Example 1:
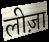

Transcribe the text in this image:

लीज़ा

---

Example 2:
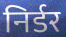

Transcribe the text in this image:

निर्डर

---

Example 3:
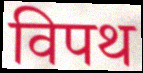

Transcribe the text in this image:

विपथ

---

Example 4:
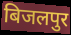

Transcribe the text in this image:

बिजलपुर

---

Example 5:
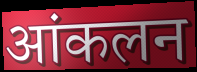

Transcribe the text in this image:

आंकलन